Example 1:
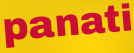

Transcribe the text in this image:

panati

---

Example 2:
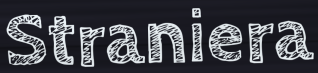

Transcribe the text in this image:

Straniera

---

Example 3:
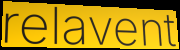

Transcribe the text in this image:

relavent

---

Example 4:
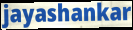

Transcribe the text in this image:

jayashankar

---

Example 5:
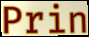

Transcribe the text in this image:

Prin